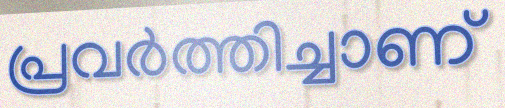
പ്രവർത്തിച്ചാണ്